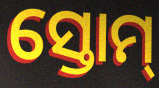
ସ୍ତୋମ୍